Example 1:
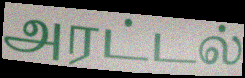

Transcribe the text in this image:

அரட்டல்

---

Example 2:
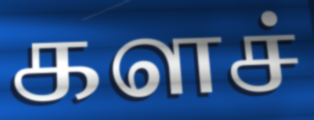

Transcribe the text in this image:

களச்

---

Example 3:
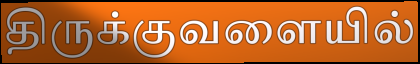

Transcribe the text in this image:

திருக்குவளையில்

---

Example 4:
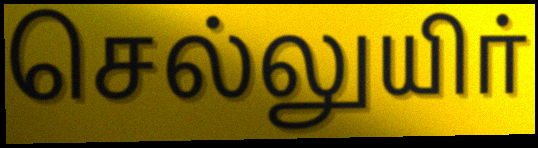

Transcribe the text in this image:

செல்லுயிர்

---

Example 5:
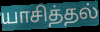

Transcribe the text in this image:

யாசித்தல்